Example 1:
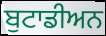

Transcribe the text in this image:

ਬੁਟਾਡੀਅਨ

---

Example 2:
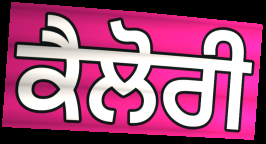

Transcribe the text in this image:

ਕੈਲੋਰੀ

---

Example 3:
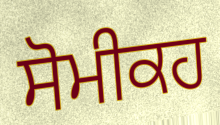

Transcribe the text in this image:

ਸੋਮੀਕਹ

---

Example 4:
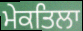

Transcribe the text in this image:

ਮੇਕਤਿਲਾ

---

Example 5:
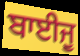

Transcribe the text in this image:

ਬਾਈਜੂ